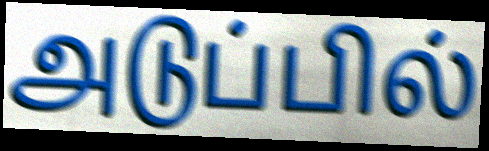
அடுப்பில்